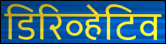
डिरिव्हेटिव